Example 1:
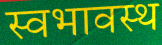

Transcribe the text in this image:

स्वभावस्थ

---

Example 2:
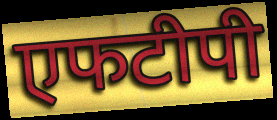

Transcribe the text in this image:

एफटीपी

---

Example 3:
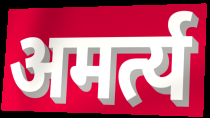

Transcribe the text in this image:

अमर्त्य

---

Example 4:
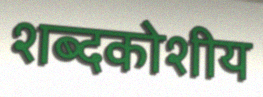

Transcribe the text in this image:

शब्दकोशीय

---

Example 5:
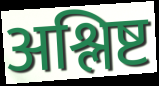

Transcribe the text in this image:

अश्लिष्ट